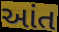
આંત